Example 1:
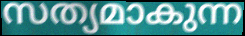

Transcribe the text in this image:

സത്യമാകുന്ന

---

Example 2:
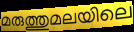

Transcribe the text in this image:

മരുത്തുമലയിലെ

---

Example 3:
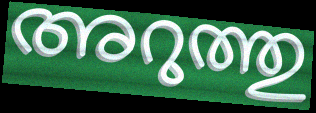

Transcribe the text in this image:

അറുത്തു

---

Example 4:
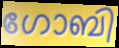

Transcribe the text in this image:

ഗോബി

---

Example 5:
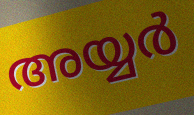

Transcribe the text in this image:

അയ്യർ